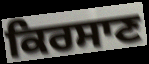
ਕਿਰਸਾਣ